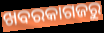
ଖବରକାଗଜରୁ